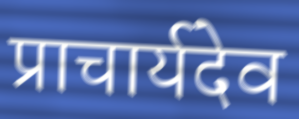
प्राचार्यदेव